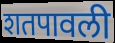
शतपावली